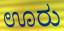
ಊರು